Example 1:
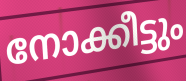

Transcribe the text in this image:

നോക്കീട്ടും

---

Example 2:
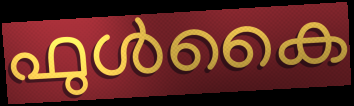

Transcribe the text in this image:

ഫുൾകൈ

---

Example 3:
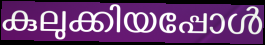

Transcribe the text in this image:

കുലുക്കിയപ്പോൾ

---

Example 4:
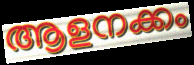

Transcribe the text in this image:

ആളനക്കം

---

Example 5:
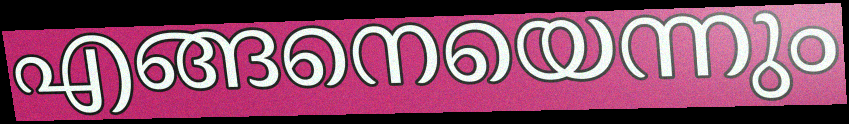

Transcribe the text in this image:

എങ്ങനെയെന്നും